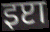
इप्टा